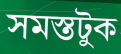
সমস্তটুক